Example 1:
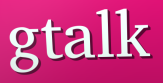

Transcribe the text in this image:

gtalk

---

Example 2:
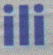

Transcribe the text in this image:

ili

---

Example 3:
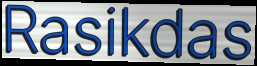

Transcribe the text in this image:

Rasikdas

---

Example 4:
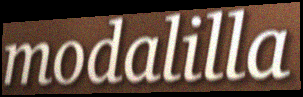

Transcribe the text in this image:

modalilla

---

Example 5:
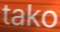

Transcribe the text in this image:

tako